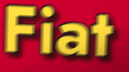
Fiat